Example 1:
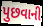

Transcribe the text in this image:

પુછવાની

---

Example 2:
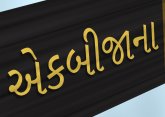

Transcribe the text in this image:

એકબીજાના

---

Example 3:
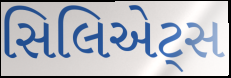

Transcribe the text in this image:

સિલિએટ્સ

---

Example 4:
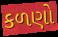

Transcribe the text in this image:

કળણો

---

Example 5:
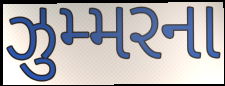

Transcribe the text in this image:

ઝુમ્મરના